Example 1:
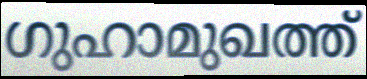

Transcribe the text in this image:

ഗുഹാമുഖത്ത്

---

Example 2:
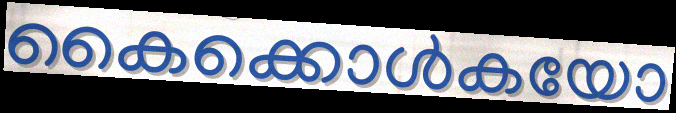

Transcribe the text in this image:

കൈക്കൊൾകയോ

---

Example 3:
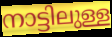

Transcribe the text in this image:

നാട്ടിലുള്ള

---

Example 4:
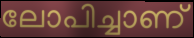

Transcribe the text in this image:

ലോപിച്ചാണ്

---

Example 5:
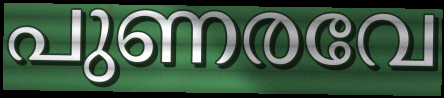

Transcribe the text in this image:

പുണരവേ